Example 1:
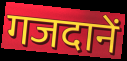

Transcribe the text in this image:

गजदानें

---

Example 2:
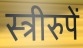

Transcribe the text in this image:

स्त्रीरुपें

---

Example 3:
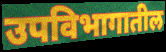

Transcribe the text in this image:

उपविभागातील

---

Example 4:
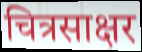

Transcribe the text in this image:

चित्रसाक्षर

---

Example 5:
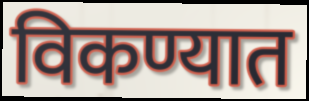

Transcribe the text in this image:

विकण्यात